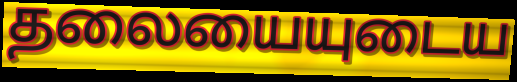
தலையையுடைய